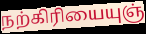
நற்கிரியையுஞ்